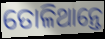
ତୋଳିଥାନ୍ତେ